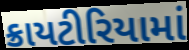
ક્રાયટીરિયામાં